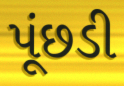
પૂંછડી